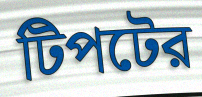
টিপটের